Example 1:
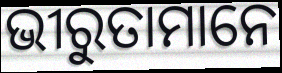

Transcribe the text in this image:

ଭୀରୁତାମାନେ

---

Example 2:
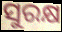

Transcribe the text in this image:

ସୁରକ୍ଷ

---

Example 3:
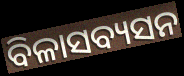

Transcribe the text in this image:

ବିଳାସବ୍ୟସନ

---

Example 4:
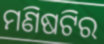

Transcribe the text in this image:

ମଣିଷଟିର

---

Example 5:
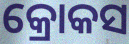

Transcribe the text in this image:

କ୍ରୋକସ